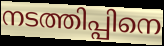
നടത്തിപ്പിനെ